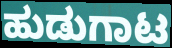
ಹುಡುಗಾಟ